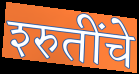
श्रुतींचे